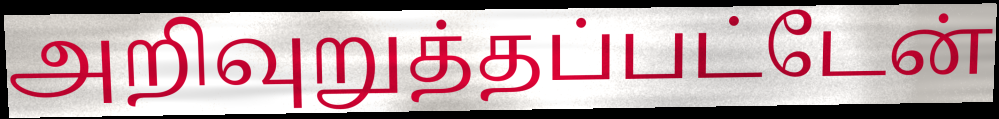
அறிவுறுத்தப்பட்டேன்